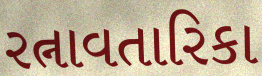
રત્નાવતારિકા